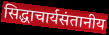
सिद्धाचार्यसंतानीय